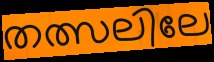
തത്സലിലേ